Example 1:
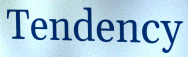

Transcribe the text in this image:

Tendency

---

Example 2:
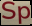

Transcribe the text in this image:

Sp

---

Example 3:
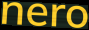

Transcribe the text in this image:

nero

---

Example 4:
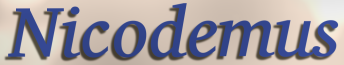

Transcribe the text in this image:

Nicodemus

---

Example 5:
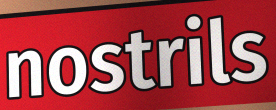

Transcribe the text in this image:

nostrils